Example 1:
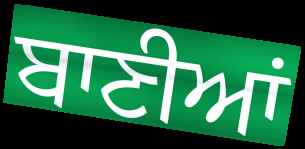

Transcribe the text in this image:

ਬਾਣੀਆਂ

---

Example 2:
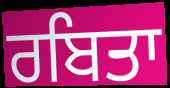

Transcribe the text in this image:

ਰਬਿਤਾ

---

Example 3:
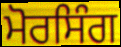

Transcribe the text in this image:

ਮੋਰਸਿੰਗ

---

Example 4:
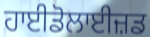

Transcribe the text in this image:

ਹਾਈਡੋਲਾਈਜ਼ਡ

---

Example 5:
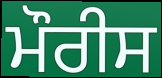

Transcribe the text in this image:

ਮੌਰੀਸ